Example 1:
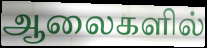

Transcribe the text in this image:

ஆலைகளில்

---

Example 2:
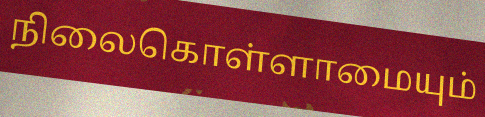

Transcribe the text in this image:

நிலைகொள்ளாமையும்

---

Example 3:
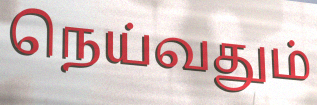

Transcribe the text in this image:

நெய்வதும்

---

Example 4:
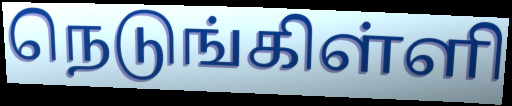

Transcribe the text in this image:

நெடுங்கிள்ளி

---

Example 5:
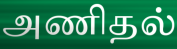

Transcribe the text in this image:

அணிதல்